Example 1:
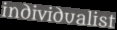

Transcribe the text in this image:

individualist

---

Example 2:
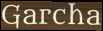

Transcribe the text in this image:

Garcha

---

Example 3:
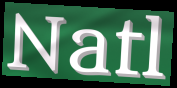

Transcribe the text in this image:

Natl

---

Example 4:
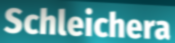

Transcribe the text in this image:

Schleichera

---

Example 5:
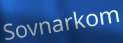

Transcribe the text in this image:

Sovnarkom